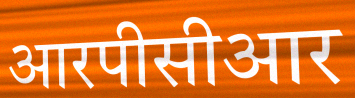
आरपीसीआर